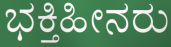
ಭಕ್ತಿಹೀನರು